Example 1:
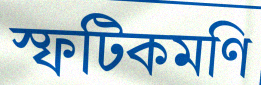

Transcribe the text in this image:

স্ফটিকমণি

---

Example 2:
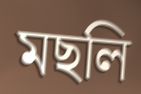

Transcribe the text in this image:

মছলি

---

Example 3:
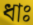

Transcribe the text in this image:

ধাঃ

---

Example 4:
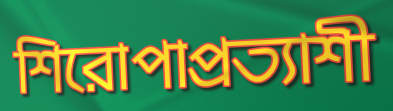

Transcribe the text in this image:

শিরোপাপ্রত্যাশী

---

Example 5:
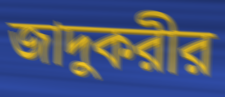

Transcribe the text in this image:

জাদুকরীর